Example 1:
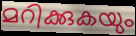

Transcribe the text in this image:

മറിക്കുകയും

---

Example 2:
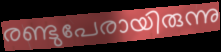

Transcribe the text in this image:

രണ്ടുപേരായിരുന്നു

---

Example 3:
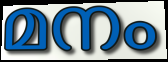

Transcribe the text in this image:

മനം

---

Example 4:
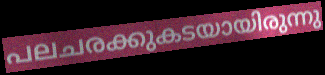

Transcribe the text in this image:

പലചരക്കുകടയായിരുന്നു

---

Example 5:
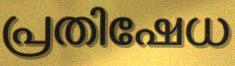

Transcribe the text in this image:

പ്രതിഷേധ